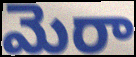
మెరా